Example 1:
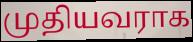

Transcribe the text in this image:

முதியவராக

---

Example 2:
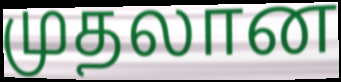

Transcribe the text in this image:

முதலான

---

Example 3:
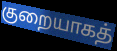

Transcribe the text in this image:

குறையாகத்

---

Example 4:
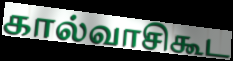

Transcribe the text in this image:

கால்வாசிகூட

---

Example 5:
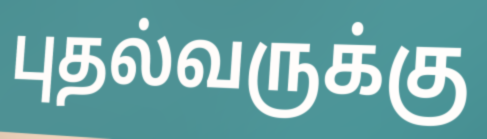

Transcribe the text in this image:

புதல்வருக்கு